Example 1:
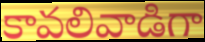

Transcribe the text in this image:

కావలివాడిగా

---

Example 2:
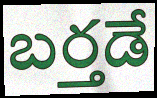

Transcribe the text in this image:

బర్తడే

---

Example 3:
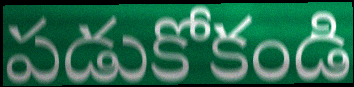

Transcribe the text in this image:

పడుకోకండి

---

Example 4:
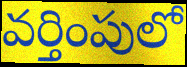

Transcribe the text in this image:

వర్తింపులో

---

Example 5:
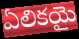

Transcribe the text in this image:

ఏలికయై